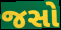
જસો